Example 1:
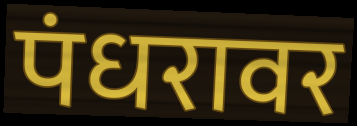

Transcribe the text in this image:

पंधरावर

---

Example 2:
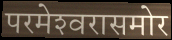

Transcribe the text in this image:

परमेश्वरासमोर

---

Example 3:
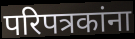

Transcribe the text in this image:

परिपत्रकांना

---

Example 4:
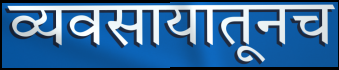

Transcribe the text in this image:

व्यवसायातूनच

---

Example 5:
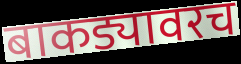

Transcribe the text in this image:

बाकड्यावरच